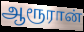
ஆரூரான்